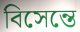
বিসেন্তে